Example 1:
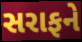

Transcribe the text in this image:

સરાફને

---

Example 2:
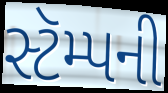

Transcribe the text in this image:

સ્ટૅમ્પની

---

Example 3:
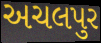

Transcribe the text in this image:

અચલપુર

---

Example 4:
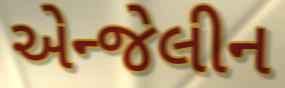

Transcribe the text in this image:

એન્જેલીન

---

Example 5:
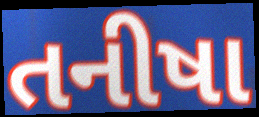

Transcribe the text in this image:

તનીષા